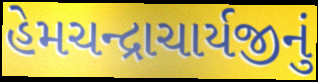
હેમચન્દ્રાચાર્યજીનું